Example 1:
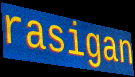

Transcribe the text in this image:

rasigan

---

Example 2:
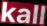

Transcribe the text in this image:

kall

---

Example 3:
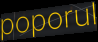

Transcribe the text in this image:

poporul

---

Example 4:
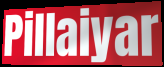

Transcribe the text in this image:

Pillaiyar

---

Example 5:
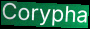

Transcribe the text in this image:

Corypha